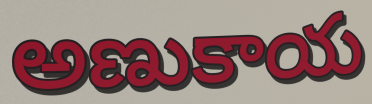
అణుకాయ